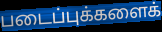
படைப்புக்களைக்